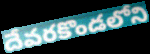
దేవరకొండలోని